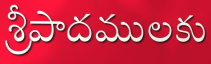
శ్రీపాదములకు